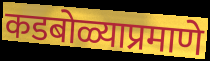
कडबोळ्याप्रमाणे